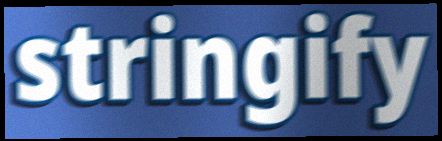
stringify